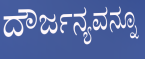
ದೌರ್ಜನ್ಯವನ್ನೂ